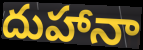
దుహానా